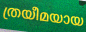
ത്രയീമയായ